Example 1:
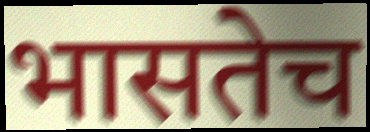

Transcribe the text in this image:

भासतेच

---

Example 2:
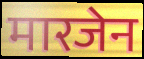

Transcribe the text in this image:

मारजेन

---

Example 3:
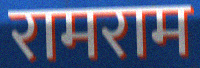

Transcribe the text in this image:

रामराम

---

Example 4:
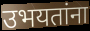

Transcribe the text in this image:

उभयतांना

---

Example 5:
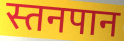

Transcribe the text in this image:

स्तनपान